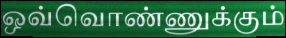
ஒவ்வொண்ணுக்கும்